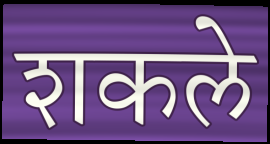
शकले